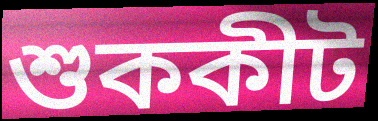
শুককীট